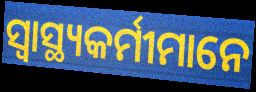
ସ୍ବାସ୍ଥ୍ୟକର୍ମୀମାନେ